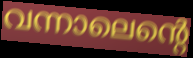
വന്നാലെന്റെ